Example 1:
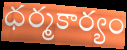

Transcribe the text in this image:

ధర్మకార్యం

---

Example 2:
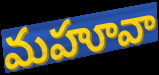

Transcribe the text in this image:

మహూవా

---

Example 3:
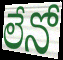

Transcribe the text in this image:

లేనో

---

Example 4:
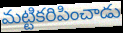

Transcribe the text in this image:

మట్టికరిపించాడు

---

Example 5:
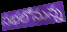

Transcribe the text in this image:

సభలోనున్న